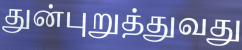
துன்புறுத்துவது